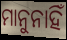
ମାନୁନାହିଁ